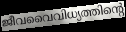
ജീവവൈവിധ്യത്തിന്റെ